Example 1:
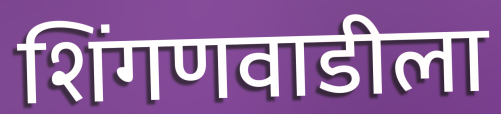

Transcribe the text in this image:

शिंगणवाडीला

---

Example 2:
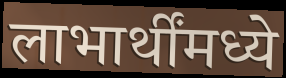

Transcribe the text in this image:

लाभार्थींमध्ये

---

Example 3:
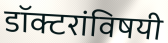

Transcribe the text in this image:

डॉक्टरांविषयी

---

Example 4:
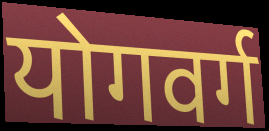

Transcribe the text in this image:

योगवर्ग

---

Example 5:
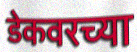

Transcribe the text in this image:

डेकवरच्या